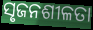
ସୃଜନଶୀଳତା